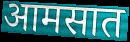
आमसात